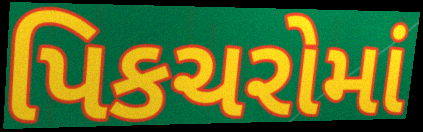
પિકચરોમાં